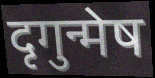
दृगुन्मेष